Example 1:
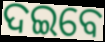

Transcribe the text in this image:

ଦଇବେ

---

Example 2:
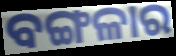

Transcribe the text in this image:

ବଙ୍ଗଳାର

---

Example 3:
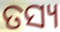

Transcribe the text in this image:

ତସ୍ୟ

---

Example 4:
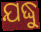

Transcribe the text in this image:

ଯଦ୍ଧୁ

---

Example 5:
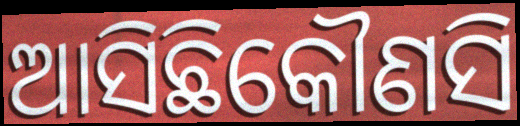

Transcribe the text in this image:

ଆସିଛିକୌଣସି